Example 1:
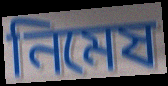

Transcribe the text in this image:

নিমেষ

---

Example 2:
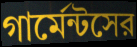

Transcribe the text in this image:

গার্মেন্টসের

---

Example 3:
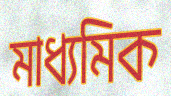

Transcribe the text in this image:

মাধ্যমিক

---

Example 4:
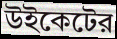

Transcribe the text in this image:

উইকেটের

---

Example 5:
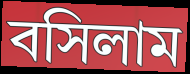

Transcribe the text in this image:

বসিলাম